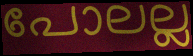
പോലല്ല